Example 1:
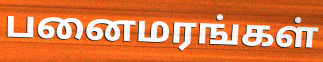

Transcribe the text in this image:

பனைமரங்கள்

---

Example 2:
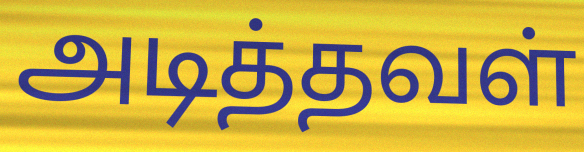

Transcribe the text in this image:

அடித்தவள்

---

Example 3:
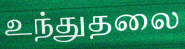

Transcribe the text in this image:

உந்துதலை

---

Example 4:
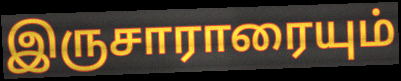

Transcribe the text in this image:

இருசாராரையும்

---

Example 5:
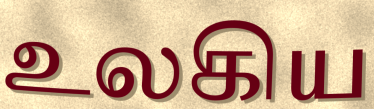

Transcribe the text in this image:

உலகிய